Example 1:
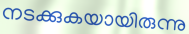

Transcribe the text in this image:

നടക്കുകയായിരുന്നു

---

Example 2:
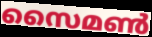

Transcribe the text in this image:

സൈമൺ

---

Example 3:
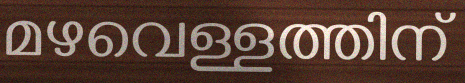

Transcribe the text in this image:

മഴവെള്ളത്തിന്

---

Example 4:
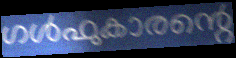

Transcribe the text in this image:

ഗൾഫുകാരന്റെ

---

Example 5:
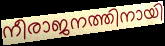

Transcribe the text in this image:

നീരാജനത്തിനായി